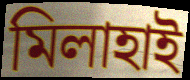
মিলাহাই